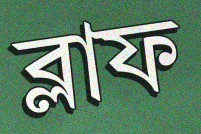
ব্লাফ